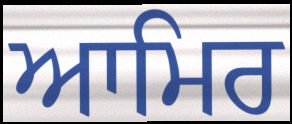
ਆਮਿਰ